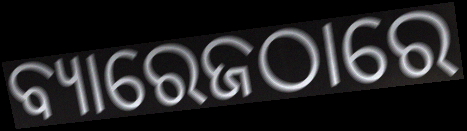
ବ୍ୟାରେଜଠାରେ